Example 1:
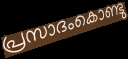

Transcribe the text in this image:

പ്രസാദംകൊണ്ടു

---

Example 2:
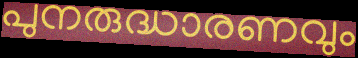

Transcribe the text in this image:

പുനരുദ്ധാരണവും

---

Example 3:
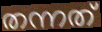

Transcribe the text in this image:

തന്നത്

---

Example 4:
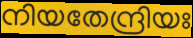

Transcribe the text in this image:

നിയതേന്ദ്രിയഃ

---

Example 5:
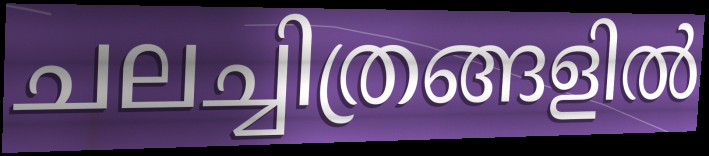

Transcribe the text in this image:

ചലച്ചിത്രങ്ങളിൽ